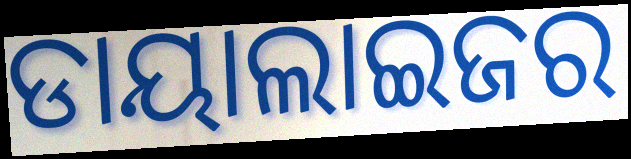
ଡାୟାଲାଇଜର